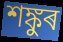
শঙ্কুৰ